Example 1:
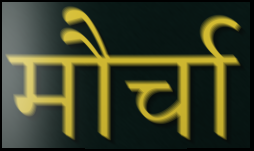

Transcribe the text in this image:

मौर्चा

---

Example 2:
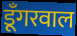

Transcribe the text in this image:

डूँगरवाल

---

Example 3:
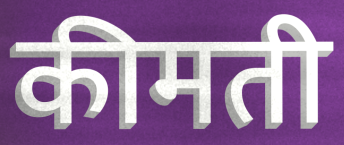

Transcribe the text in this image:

कीमती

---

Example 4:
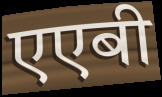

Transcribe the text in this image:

एएबी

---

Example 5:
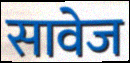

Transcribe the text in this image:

सावेज